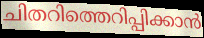
ചിതറിത്തെറിപ്പിക്കാൻ